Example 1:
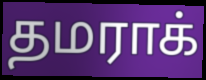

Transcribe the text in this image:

தமராக்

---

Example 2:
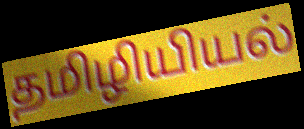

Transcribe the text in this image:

தமிழியியல்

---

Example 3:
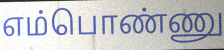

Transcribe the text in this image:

எம்பொண்ணு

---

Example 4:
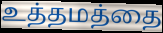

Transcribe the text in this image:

உத்தமத்தை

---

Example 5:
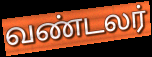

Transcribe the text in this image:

வண்டலர்